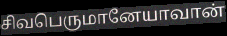
சிவபெருமானேயாவான்